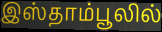
இஸ்தாம்பூலில்